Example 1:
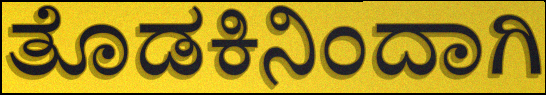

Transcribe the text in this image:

ತೊಡಕಿನಿಂದಾಗಿ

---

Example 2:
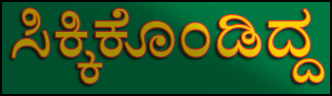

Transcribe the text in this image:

ಸಿಕ್ಕಿಕೊಂಡಿದ್ದ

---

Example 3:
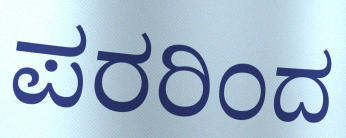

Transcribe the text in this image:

ಪರರಿಂದ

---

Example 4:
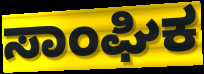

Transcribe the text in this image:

ಸಾಂಘಿಕ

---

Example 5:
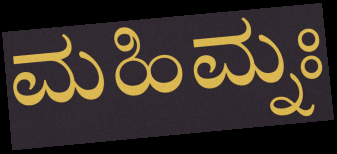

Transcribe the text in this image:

ಮಹಿಮ್ನಃ